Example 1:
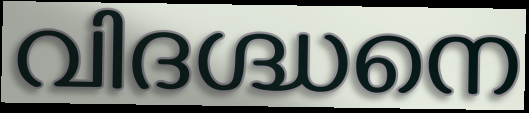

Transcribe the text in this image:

വിദഗ്ദ്ധനെ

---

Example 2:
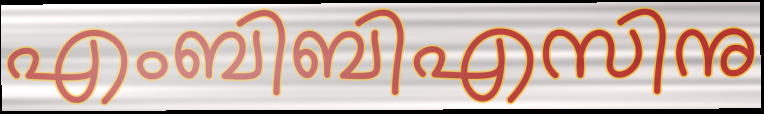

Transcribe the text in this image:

എംബിബിഎസിനു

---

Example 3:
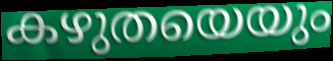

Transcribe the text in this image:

കഴുതയെയും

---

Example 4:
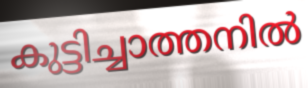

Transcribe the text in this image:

കുട്ടിച്ചാത്തനിൽ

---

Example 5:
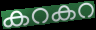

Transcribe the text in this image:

കറകറ